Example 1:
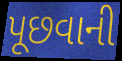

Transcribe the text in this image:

પૂછવાની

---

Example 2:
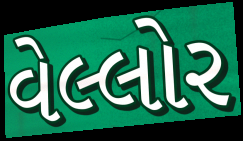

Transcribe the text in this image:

વેલ્લોર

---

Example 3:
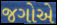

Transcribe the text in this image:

જગોએ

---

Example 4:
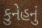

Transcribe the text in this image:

કુનેહનું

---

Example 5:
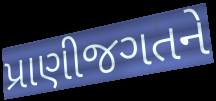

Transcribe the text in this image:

પ્રાણીજગતને